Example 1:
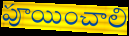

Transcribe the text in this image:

పూయించాలి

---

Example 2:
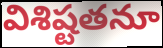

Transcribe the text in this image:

విశిష్టతనూ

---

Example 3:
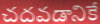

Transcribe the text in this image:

చదవడానికే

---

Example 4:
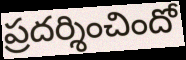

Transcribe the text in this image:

ప్రదర్శించిందో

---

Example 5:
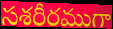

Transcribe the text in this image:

సశరీరముగా